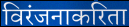
विरंजनाकरिता